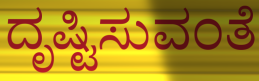
ದೃಷ್ಟಿಸುವಂತೆ